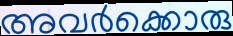
അവർക്കൊരു